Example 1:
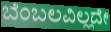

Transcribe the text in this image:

ಬೆಂಬಲವಿಲ್ಲದೇ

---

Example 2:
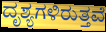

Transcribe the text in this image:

ದೃಶ್ಯಗಳಿರುತ್ತವೆ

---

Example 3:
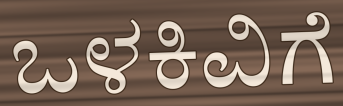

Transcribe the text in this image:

ಒಳಕಿವಿಗೆ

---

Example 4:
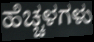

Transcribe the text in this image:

ಹೆಚ್ಚಳಗಳು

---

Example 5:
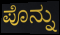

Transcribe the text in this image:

ಪೊನ್ನು